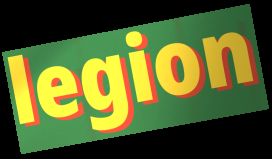
legion